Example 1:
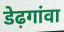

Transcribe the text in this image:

डेढ़गांवा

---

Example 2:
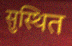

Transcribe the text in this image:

सुस्थित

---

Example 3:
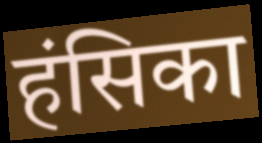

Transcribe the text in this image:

हंसिका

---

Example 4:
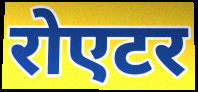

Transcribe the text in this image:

रोएटर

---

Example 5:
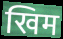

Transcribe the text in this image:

खिम